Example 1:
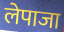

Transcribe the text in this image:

लेपाजा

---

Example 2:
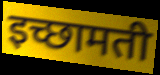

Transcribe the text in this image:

इच्छामती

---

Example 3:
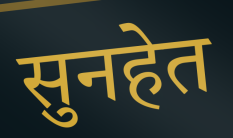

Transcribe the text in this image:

सुनहेत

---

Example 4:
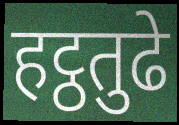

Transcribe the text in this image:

हट्ठतुढे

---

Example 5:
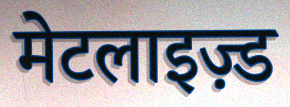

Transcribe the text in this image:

मेटलाइज़्ड